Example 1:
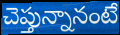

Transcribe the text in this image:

చెప్తున్నానంటే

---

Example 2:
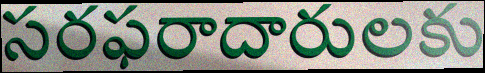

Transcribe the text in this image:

సరఫరాదారులకు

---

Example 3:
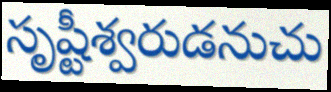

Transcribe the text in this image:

సృష్టీశ్వరుడనుచు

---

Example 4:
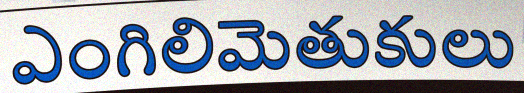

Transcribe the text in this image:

ఎంగిలిమెతుకులు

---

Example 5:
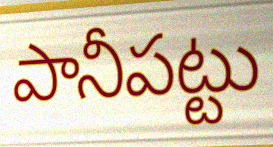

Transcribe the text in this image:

పానీపట్టు